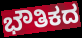
ಭೌತಿಕದ